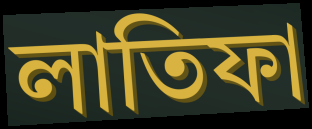
লাতিফা